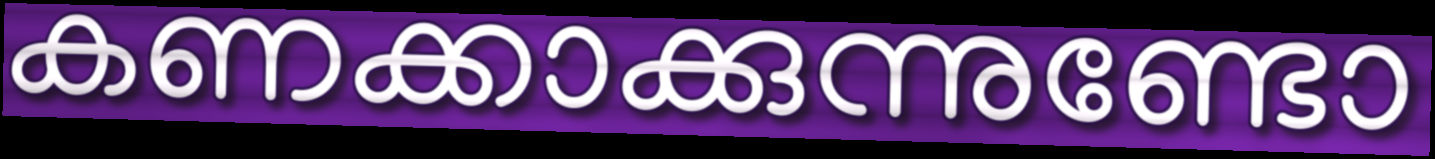
കണക്കാക്കുന്നുണ്ടോ